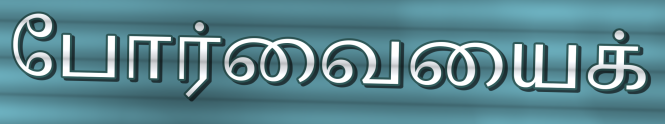
போர்வையைக்